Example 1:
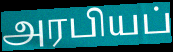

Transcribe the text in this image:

அரபியப்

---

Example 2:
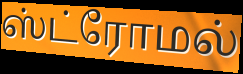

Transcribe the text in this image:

ஸ்ட்ரோமல்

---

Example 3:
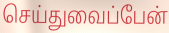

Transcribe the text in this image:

செய்துவைப்பேன்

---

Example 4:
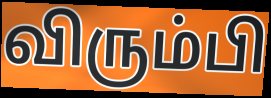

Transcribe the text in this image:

விரும்பி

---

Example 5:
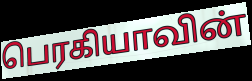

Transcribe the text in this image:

பெரகியாவின்